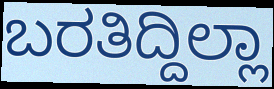
ಬರತಿದ್ದಿಲ್ಲಾ